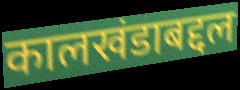
कालखंडाबद्दल